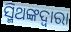
ସ୍ମିଥଙ୍କଦ୍ୱାରା